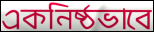
একনিষ্ঠভাবে